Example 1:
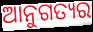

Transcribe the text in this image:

ଆନୁଗତ୍ୟର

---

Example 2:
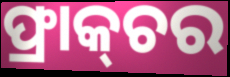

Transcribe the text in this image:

ଫ୍ରାକ୍‌ଚର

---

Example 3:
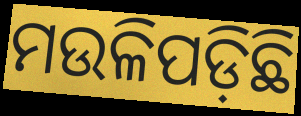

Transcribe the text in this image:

ମଉଳିପଡ଼ିଛି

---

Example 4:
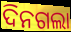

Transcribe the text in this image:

ଦିନଗଲା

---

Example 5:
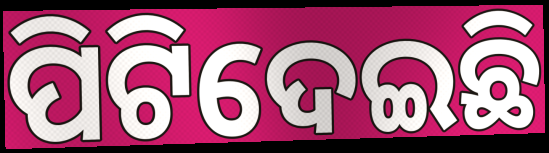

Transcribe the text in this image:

ପିଟିଦେଇଛି